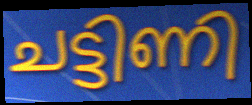
ചട്ടിണി